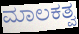
ಮಾಲಕತ್ವ